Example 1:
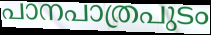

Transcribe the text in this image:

പാനപാത്രപുടം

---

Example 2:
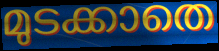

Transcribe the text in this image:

മുടക്കാതെ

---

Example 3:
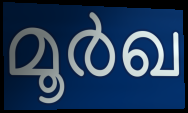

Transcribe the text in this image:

മൂർഖ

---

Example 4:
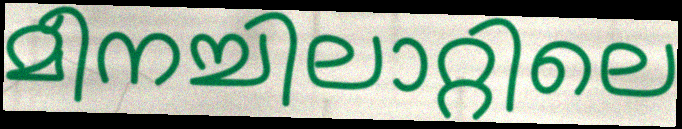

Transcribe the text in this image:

മീനച്ചിലാറ്റിലെ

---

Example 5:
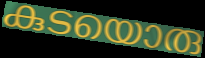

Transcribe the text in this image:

കുടയൊരു